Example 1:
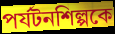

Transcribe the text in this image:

পর্যটনশিল্পকে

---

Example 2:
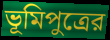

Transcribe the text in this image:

ভূমিপুত্রের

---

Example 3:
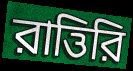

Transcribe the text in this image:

রাত্তিরি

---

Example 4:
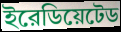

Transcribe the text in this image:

ইরেডিয়েটেড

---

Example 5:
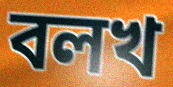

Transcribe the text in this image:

বলখ